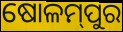
ଷୋଳମ୍‌ପୁର